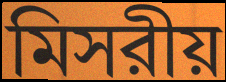
মিসরীয়